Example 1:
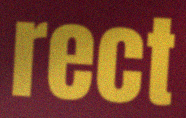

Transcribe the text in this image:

rect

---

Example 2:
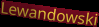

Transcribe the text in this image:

Lewandowski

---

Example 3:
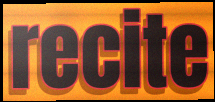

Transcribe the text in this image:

recite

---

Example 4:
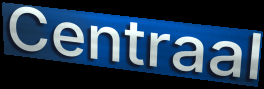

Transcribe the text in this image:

Centraal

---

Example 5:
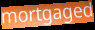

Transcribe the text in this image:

mortgaged